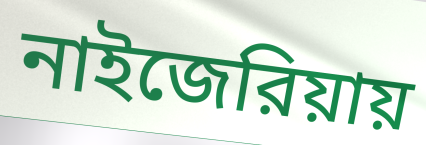
নাইজেরিয়ায়